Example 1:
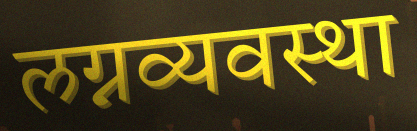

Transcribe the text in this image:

लग्नव्यवस्था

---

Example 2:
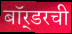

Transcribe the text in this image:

बॉर्डरची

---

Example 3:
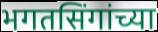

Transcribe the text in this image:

भगतसिंगांच्या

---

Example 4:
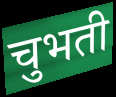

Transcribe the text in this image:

चुभती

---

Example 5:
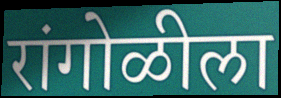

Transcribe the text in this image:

रांगोळीला